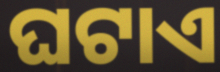
ଘଟାଏ